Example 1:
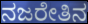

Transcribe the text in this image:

ನಜರೇತಿನ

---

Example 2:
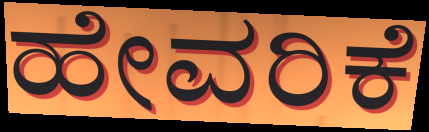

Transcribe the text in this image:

ಹೇವರಿಕೆ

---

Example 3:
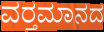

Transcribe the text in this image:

ವರ‍್ತಮಾನದ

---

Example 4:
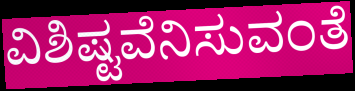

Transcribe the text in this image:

ವಿಶಿಷ್ಟವೆನಿಸುವಂತೆ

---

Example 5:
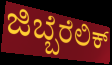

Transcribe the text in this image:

ಜಿಬ್ಬೆರೆಲಿಕ್